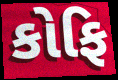
કોફિ